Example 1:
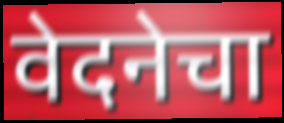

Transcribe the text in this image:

वेदनेचा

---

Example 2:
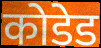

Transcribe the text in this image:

कोडेड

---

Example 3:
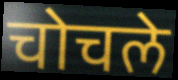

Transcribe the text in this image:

चोचले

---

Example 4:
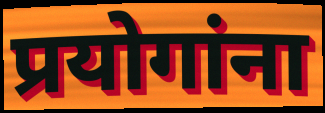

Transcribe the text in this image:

प्रयोगांना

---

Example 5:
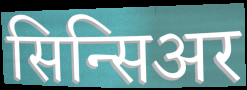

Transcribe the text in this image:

सिन्सिअर